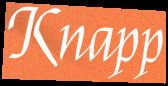
Knapp